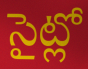
సైట్లో